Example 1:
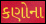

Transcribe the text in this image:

કણોના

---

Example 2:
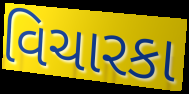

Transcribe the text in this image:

વિચારકા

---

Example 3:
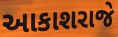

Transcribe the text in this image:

આકાશરાજે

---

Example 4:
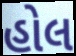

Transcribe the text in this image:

હોલ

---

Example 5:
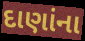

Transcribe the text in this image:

દાણાંના